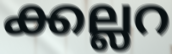
ക്കല്ലറ